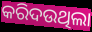
କରିଦଉଥିଲା